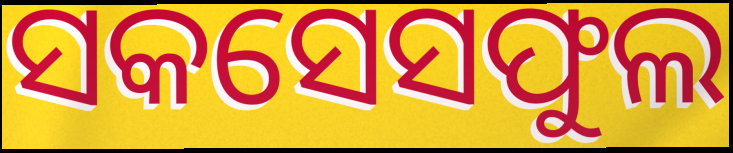
ସକସେସଫୁଲ